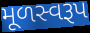
મૂળસ્વરૂપ